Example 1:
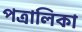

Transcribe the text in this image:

পত্রালিকা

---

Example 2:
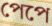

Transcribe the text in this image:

পেপে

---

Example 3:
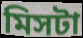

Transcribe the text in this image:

মিসটা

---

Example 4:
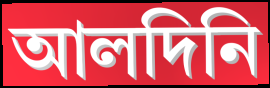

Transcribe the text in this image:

আলদিনি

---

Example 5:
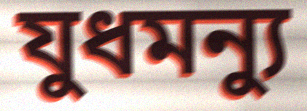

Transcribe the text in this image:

যুধমন্যু